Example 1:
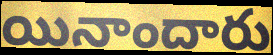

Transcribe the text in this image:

యినాందారు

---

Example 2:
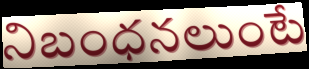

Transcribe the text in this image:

నిబంధనలుంటే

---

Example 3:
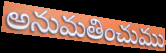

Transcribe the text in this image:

అనుమతించుము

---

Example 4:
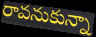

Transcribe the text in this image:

రావనుకున్నా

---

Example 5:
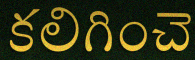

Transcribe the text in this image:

కలిగించె